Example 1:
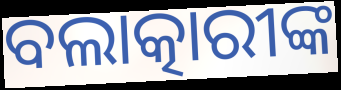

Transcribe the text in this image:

ବଲାତ୍କାରୀଙ୍କ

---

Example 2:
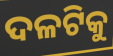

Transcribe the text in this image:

ଦଳଟିକୁ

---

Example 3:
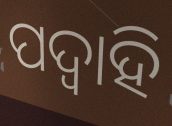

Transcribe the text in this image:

ପଦ୍ଵାହି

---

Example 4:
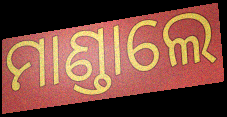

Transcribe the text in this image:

ମାଣ୍ଡାଲେ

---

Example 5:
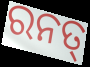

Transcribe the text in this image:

ରନତ୍